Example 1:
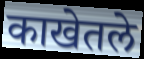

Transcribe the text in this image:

काखेतले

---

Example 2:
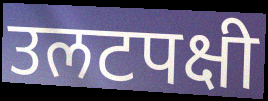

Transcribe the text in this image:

उलटपक्षी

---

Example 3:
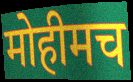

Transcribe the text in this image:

मोहीमच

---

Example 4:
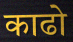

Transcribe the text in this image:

काढो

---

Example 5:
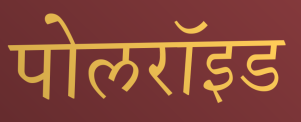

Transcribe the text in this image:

पोलरॉइड